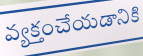
వ్యక్తంచేయడానికి